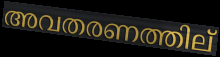
അവതരണത്തില്